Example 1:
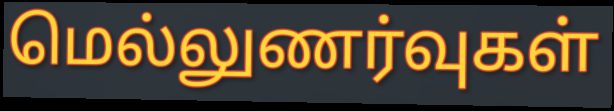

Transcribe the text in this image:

மெல்லுணர்வுகள்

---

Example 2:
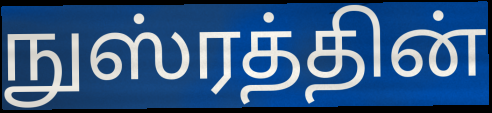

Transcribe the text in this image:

நுஸ்ரத்தின்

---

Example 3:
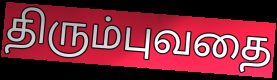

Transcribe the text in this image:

திரும்புவதை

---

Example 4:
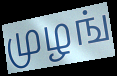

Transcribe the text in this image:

முழங்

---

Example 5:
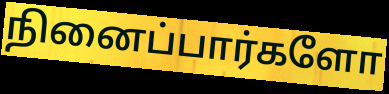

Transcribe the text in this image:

நினைப்பார்களோ